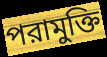
পরামুক্তি